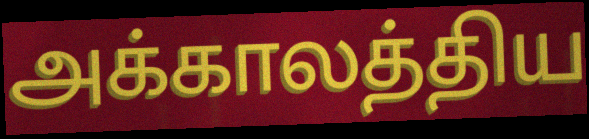
அக்காலத்திய